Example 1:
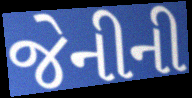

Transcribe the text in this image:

જેનીની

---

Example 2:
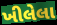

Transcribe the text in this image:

ખીલેલા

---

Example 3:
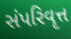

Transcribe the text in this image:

સંપરિવૃત્ત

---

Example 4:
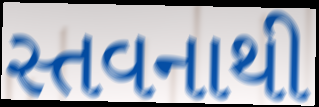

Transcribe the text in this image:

સ્તવનાથી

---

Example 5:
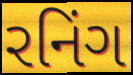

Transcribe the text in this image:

રનિંગ